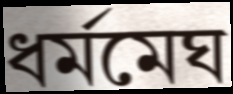
ধর্মমেঘ